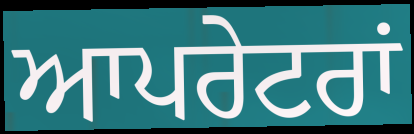
ਆਪਰੇਟਰਾਂ